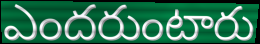
ఎందరుంటారు